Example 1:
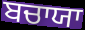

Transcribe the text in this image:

ਬਚਾਯਾ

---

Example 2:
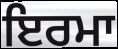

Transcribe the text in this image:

ਇਰਮਾ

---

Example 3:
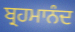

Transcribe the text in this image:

ਬ੍ਰਹਮਾਨੰਦ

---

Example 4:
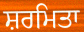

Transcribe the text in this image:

ਸ਼ਰਮਿਤਾ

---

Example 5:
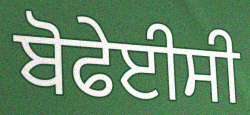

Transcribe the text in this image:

ਬੋਫੇਈਸੀ